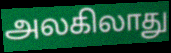
அலகிலாது